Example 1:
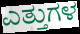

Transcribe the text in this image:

ಎತ್ತುಗಳ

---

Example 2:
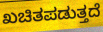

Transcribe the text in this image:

ಖಚಿತಪಡುತ್ತದೆ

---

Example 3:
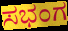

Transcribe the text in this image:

ಸಭಂಗ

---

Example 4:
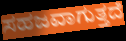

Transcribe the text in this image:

ಸಹಜವಾಗುತ್ತದೆ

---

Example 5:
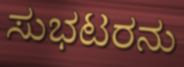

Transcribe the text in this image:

ಸುಭಟರನು